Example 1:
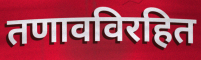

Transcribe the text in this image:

तणावविरहित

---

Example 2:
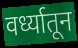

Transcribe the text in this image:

वर्ध्यातून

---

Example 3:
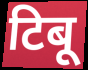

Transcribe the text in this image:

टिबू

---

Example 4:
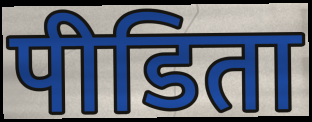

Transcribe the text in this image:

पीडिता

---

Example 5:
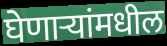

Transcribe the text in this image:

घेणाऱ्यांमधील